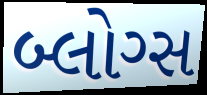
બ્લોગ્સ